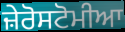
ਜ਼ੇਰੋਸਟੋਮੀਆ